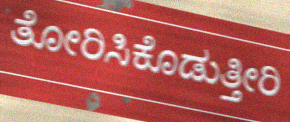
ತೋರಿಸಿಕೊಡುತ್ತೀರಿ